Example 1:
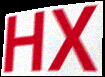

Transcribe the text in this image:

HX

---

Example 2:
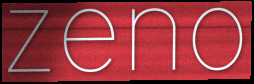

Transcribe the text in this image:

zeno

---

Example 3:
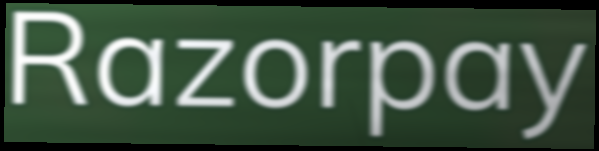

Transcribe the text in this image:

Razorpay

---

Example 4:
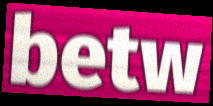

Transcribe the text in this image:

betw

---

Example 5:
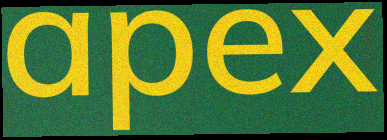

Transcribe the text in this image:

apex